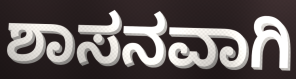
ಶಾಸನವಾಗಿ